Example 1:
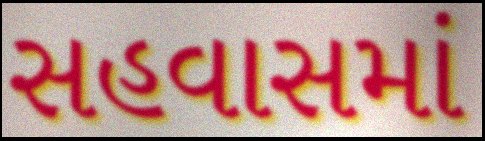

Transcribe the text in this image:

સહવાસમાં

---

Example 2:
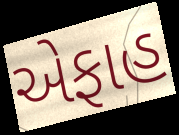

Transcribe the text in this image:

એફાહ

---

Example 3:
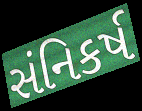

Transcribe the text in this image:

સંનિકર્ષ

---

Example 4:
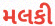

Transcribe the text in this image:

મલકી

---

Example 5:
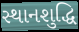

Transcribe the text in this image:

સ્થાનશુદ્ધિ